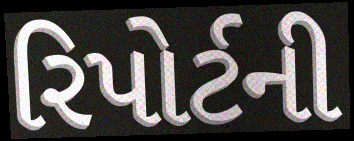
રિપોર્ટની